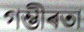
গম্ভীৰতা